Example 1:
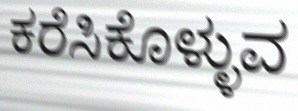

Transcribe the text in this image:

ಕರೆಸಿಕೊಳ್ಳುವ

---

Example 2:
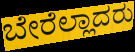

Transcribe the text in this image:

ಬೇರೆಲ್ಲಾದರು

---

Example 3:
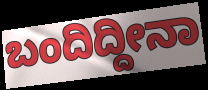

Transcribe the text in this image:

ಬಂದಿದ್ದೀನಾ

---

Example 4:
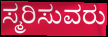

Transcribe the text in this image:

ಸ್ಮರಿಸುವರು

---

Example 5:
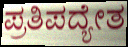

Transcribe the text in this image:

ಪ್ರತಿಪದ್ಯೇತ